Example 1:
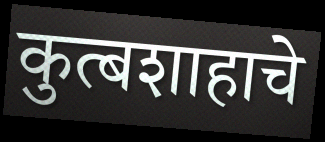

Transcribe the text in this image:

कुत्बशाहाचे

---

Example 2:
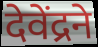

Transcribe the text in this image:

देवेंद्रने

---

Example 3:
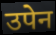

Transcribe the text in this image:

उपेन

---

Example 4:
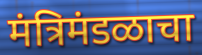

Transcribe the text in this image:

मंत्रिमंडळाचा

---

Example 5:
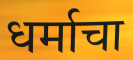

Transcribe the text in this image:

धर्माचा